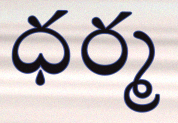
ధర్మ